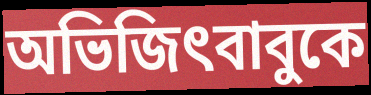
অভিজিৎবাবুকে